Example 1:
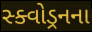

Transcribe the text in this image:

સ્ક્વોડ્રનના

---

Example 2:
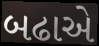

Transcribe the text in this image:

બઢાએ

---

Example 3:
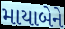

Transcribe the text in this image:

માયાબેને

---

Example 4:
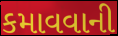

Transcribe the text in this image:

કમાવવાની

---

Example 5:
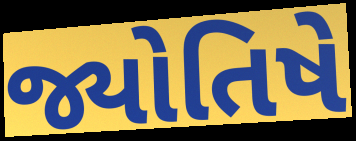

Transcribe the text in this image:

જ્યોતિષે